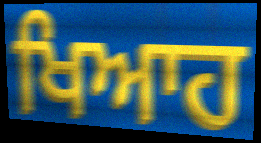
ਖਿਆਹ